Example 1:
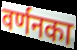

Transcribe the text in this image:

वर्णनका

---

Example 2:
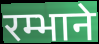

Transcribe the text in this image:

रम्भाने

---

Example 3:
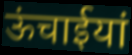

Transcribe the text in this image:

ऊंचाईयां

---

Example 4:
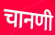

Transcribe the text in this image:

चानणी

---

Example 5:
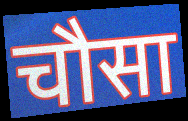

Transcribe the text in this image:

चौसा